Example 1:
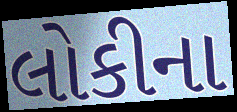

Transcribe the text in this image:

લોકીના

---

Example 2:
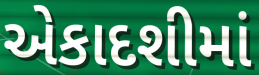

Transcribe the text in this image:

એકાદશીમાં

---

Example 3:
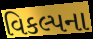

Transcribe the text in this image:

વિકલ્પના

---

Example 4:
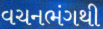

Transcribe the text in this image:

વચનભંગથી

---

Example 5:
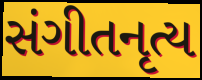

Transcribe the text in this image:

સંગીતનૃત્ય